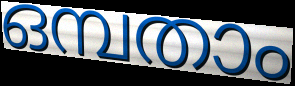
ഒമ്പതാം